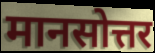
मानसोत्तर